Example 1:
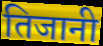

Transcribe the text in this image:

तिजानी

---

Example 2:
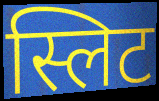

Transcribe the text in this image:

स्लिट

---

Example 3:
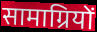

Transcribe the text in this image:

सामाग्रियों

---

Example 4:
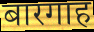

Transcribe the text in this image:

बारगाह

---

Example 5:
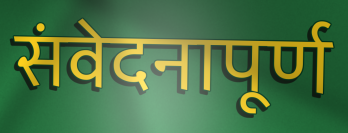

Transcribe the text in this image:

संवेदनापूर्ण